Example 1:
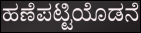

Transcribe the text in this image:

ಹಣೆಪಟ್ಟಿಯೊಡನೆ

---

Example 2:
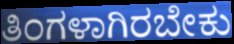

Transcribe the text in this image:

ತಿಂಗಳಾಗಿರಬೇಕು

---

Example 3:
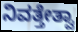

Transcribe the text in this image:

ನಿವತ್ತೇತ್ವಾ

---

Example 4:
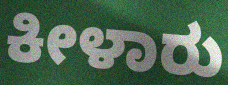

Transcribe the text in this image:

ಕೀಳಾರು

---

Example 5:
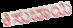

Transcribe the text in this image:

ಕಿಸುಬಾಯಿ